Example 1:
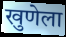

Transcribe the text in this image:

खुणेला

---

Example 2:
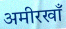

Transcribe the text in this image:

अमीरखाँ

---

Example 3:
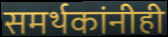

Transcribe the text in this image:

समर्थकांनीही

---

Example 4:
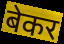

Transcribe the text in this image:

बेकर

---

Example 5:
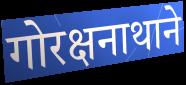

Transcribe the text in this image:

गोरक्षनाथाने